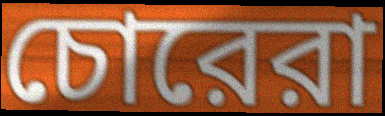
চোরেরা